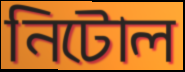
নিটোল